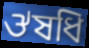
ঔষধি